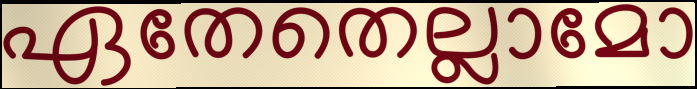
ഏതേതെല്ലാമോ